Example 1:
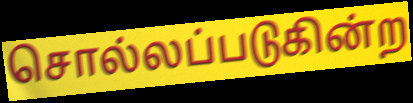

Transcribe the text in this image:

சொல்லப்படுகின்ற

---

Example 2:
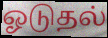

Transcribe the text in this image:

ஓடுதல்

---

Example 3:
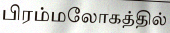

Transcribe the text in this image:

பிரம்மலோகத்தில்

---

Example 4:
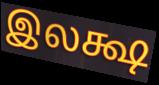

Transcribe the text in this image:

இலக்ஷ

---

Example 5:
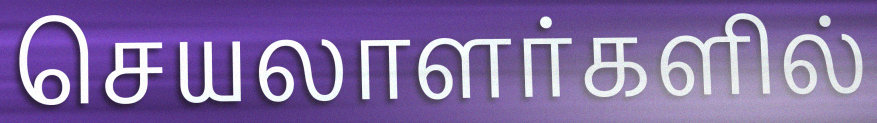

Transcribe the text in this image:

செயலாளர்களில்